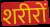
शरीरों